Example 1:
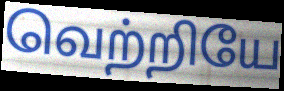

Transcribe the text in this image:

வெற்றியே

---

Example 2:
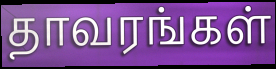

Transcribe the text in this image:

தாவரங்கள்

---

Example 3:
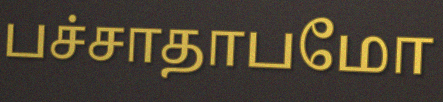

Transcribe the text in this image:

பச்சாதாபமோ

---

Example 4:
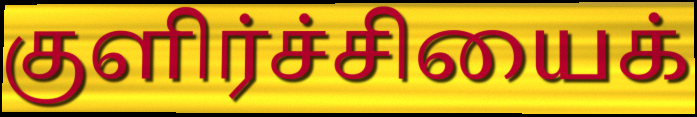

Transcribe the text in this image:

குளிர்ச்சியைக்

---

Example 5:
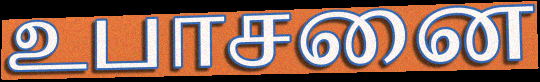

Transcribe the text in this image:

உபாசனை